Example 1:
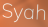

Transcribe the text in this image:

Syah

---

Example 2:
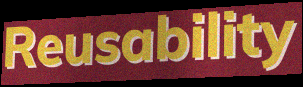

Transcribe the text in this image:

Reusability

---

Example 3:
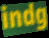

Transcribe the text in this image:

indg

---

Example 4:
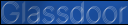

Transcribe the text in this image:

Glassdoor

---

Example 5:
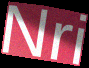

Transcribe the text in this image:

Nri